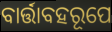
ବାର୍ତ୍ତାବହରୂପେ